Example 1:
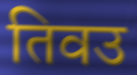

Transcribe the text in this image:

तिवउ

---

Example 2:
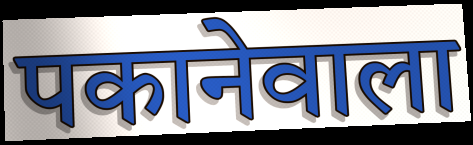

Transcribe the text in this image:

पकानेवाला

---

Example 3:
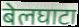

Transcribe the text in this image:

बेलघाटा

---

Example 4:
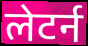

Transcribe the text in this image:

लेटर्न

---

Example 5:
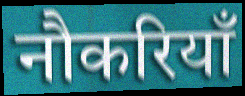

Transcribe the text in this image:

नौकरियाँ